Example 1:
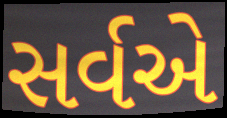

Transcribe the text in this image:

સર્વએ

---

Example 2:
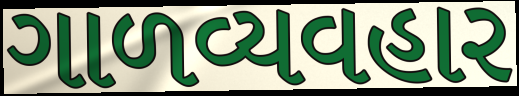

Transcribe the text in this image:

ગાળવ્યવહાર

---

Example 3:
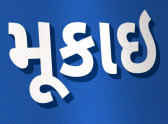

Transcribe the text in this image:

મૂકાઇ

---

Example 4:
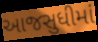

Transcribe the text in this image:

આજસુધીમાં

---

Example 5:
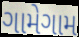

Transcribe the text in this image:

ગામેગામ